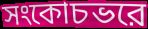
সংকোচভরে